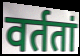
वर्ततां